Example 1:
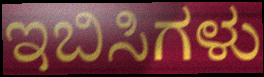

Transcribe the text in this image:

ಇಬಿಸಿಗಳು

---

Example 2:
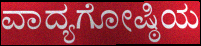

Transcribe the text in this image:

ವಾದ್ಯಗೋಷ್ಠಿಯ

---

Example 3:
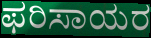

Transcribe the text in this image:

ಫರಿಸಾಯರ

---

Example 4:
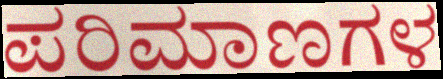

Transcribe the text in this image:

ಪರಿಮಾಣಗಳ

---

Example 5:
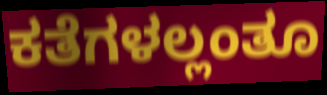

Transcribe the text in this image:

ಕತೆಗಳಲ್ಲಂತೂ